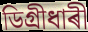
ডিগ্ৰীধাৰী